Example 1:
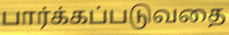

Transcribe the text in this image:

பார்க்கப்படுவதை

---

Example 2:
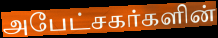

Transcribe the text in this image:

அபேட்சகர்களின்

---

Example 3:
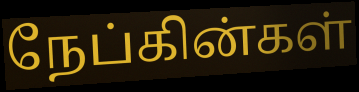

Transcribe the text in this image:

நேப்கின்கள்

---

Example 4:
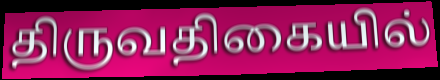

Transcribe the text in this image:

திருவதிகையில்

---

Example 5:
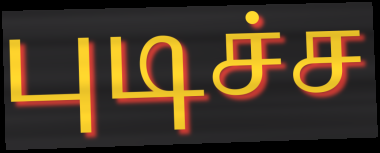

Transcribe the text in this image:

புடிச்ச